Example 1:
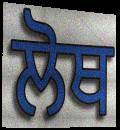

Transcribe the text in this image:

ਲੋਥ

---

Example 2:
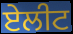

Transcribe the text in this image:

ਏਲੀਟ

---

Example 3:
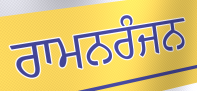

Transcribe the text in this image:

ਰਾਮਨਰੰਜਨ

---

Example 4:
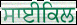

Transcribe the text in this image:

ਸਾਈਕਿਲ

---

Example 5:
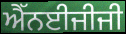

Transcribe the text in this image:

ਐੱਨਈਜੀਜੀ